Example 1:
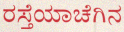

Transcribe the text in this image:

ರಸ್ತೆಯಾಚೆಗಿನ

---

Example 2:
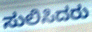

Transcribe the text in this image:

ಸುಲಿಸಿದರು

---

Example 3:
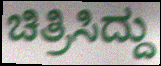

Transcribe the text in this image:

ಚಿತ್ರಿಸಿದ್ದು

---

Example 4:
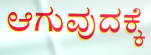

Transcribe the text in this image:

ಆಗುವುದಕ್ಕೆ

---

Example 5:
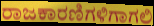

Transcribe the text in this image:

ರಾಜಕಾರಣಿಗಳಿಗಾಗಲಿ